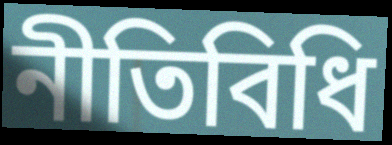
নীতিবিধি